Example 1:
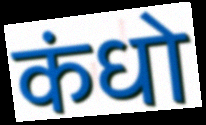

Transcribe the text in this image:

कंधो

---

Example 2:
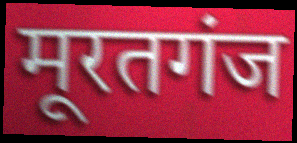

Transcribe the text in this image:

मूरतगंज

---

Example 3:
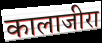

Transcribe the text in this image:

कालाजीरा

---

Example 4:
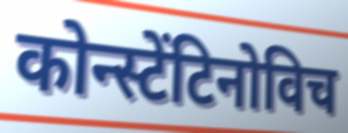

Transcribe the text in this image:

कोन्स्टेंटिनोविच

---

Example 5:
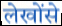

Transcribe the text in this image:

लेखोंसे